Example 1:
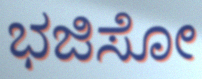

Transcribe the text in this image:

ಭಜಿಸೋ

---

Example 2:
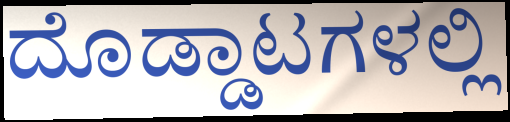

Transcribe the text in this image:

ದೊಡ್ಡಾಟಗಳಲ್ಲಿ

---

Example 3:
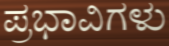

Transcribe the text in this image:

ಪ್ರಭಾವಿಗಳು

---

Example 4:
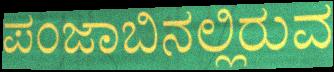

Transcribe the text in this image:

ಪಂಜಾಬಿನಲ್ಲಿರುವ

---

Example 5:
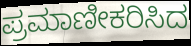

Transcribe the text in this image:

ಪ್ರಮಾಣೀಕರಿಸಿದ